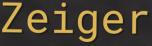
Zeiger